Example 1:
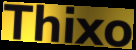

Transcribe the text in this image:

Thixo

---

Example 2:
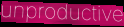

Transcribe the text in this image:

unproductive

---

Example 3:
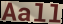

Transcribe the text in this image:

Aall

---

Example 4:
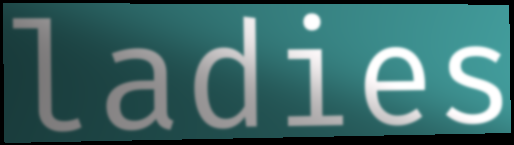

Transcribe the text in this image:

ladies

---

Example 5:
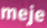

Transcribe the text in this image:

meje